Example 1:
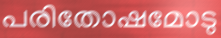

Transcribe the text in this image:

പരിതോഷമോടു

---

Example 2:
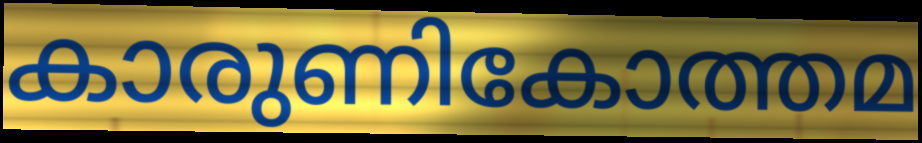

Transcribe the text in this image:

കാരുണികോത്തമ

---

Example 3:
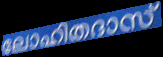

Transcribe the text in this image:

ലോഹിതദാസ്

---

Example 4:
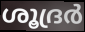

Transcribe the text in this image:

ശൂദ്രർ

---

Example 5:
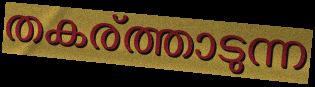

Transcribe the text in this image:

തകര്ത്താടുന്ന